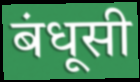
बंधूसी